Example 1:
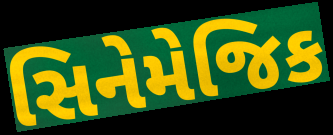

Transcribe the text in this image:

સિનેમેજિક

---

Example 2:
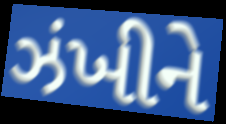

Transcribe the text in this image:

ઝંખીને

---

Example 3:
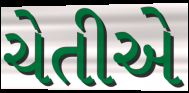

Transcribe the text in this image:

ચેતીએ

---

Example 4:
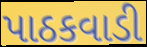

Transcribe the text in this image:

પાઠકવાડી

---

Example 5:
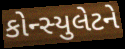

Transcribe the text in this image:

કોન્સ્યુલેટને